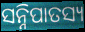
ସନ୍ନିପାତସ୍ୟ